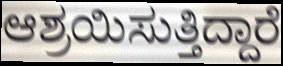
ಆಶ್ರಯಿಸುತ್ತಿದ್ದಾರೆ